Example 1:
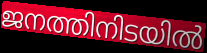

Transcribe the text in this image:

ജനത്തിനിടയിൽ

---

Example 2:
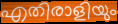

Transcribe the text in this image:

എതിരാളിയും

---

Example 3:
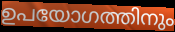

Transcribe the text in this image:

ഉപയോഗത്തിനും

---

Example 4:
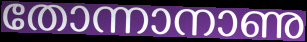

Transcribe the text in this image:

തോന്നാനാണു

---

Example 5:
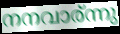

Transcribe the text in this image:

നനവാര്ന്നു